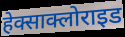
हेक्साक्लोराइड